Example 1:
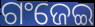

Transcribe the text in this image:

ଗଂଜେଇ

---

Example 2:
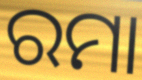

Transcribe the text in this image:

ରମା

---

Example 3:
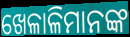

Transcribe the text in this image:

ଖେଳାଳିମାନଙ୍କ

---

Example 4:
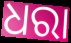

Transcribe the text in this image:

ଧରା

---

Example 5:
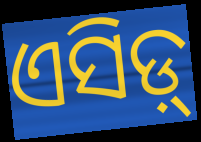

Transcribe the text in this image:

ଏସିଡ଼୍